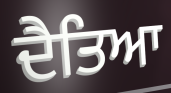
ਦੈਤਿਆ